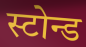
स्टोन्ड